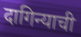
दागिन्याची